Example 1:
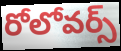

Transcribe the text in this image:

రోలోవర్స్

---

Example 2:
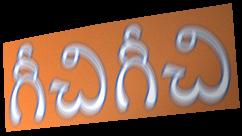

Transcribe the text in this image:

గీచిగీచి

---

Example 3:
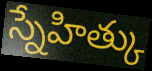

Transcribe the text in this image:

స్నేహిత్కు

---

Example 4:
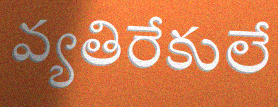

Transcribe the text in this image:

వ్యతిరేకులే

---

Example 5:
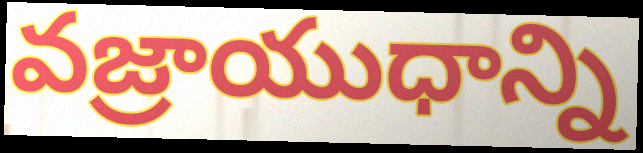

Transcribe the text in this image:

వజ్రాయుధాన్ని